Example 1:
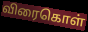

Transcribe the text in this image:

விரைகொள்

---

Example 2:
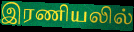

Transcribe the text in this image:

இரணியலில்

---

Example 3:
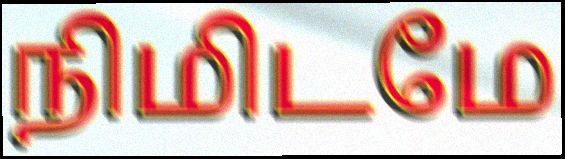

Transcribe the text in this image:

நிமிடமே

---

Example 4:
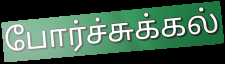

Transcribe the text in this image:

போர்ச்சுக்கல்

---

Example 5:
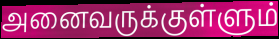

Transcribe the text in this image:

அனைவருக்குள்ளும்